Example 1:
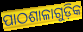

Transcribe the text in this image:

ପାଠଶାଳାଗୁଡ଼ିକ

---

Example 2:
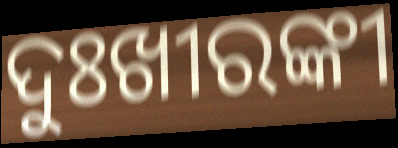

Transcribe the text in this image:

ଦୁଃଖୀରଙ୍କୀ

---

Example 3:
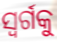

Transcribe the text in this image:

ସ୍ୱର୍ଗକୁ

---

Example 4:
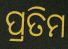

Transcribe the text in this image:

ପ୍ରତିମ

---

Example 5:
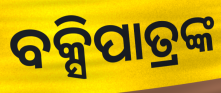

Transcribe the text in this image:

ବକ୍ସିପାତ୍ରଙ୍କ